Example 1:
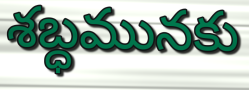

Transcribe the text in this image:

శబ్ధమునకు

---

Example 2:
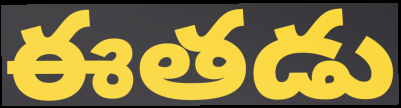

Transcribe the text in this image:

ఈతడు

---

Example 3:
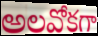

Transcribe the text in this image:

అలవోకగా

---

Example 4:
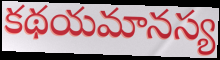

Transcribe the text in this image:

కథయమానస్య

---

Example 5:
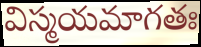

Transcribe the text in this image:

విస్మయమాగతః